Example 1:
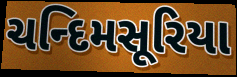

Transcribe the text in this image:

ચન્દિમસૂરિયા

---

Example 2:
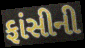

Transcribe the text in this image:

ફાંસીની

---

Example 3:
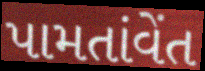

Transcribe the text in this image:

પામતાંવેંત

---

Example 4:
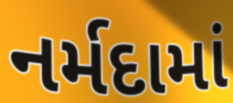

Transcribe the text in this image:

નર્મદામાં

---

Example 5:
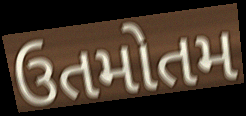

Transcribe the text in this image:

ઉતમોતમ